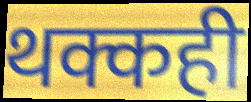
थक्कही